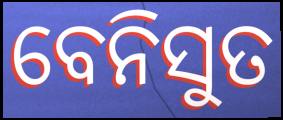
ବେନିସୁତ